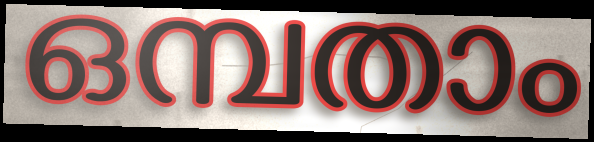
ഒമ്പതാം